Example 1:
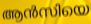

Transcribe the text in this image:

ആൻസിയെ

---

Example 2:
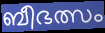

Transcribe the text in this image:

ബീഭത്സം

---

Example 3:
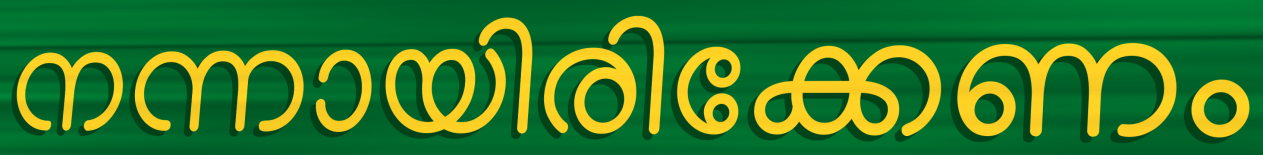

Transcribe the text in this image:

നന്നായിരിക്കേണം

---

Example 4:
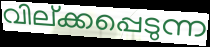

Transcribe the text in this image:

വില്ക്കപ്പെടുന്ന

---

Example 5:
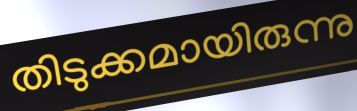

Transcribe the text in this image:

തിടുക്കമായിരുന്നു